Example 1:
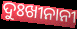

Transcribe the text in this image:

ଦୁଃଖୀନାନୀ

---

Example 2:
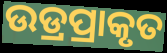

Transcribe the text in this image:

ଉଡ୍ରପ୍ରାକୃତ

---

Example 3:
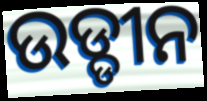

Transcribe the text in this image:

ଉଡ୍ଡୀନ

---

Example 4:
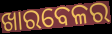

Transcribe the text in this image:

ଖାରବେଳର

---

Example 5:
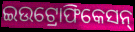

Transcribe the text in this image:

ଇଉଟ୍ରୋଫିକେସନ୍